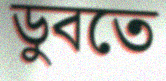
ডুবতে